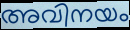
അവിനയം